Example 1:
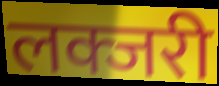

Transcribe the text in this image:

लक्‍जरी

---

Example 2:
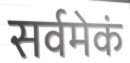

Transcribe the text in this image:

सर्वमेकं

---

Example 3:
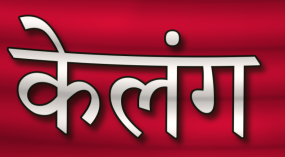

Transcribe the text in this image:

केलंग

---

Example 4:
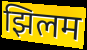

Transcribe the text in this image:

झिलम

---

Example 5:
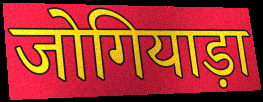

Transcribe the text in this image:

जोगियाड़ा